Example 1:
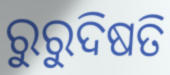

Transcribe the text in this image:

ରୁରୁଦିଷତି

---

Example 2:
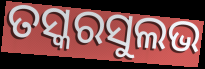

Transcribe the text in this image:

ତସ୍କରସୁଲଭ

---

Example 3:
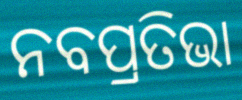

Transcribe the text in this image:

ନବପ୍ରତିଭା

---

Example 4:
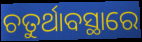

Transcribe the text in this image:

ଚତୁର୍ଥାବସ୍ଥାରେ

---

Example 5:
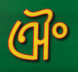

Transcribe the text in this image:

ଐଂ